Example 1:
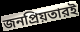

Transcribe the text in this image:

জনপ্রিয়তারই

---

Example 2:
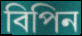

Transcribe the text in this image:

বিপিন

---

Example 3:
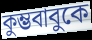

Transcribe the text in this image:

কুম্ভবাবুকে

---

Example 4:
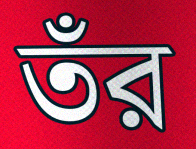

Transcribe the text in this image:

তঁর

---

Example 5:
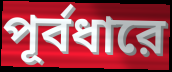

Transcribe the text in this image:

পূর্বধারে